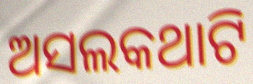
ଅସଲକଥାଟି